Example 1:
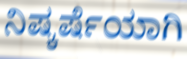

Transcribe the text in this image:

ನಿಷ್ಕರ್ಷೆಯಾಗಿ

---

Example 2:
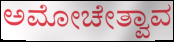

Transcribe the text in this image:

ಅಮೋಚೇತ್ವಾವ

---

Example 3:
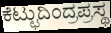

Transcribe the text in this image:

ಕೆಟ್ಟುದಿಂದ್ರಪ್ರಸ್ಥ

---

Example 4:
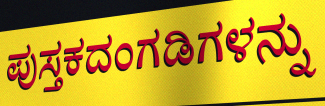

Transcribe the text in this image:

ಪುಸ್ತಕದಂಗಡಿಗಳನ್ನು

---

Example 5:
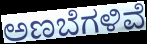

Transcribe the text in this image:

ಅಣಬೆಗಳಿವೆ